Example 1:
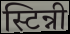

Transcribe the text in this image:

स्टिन्नी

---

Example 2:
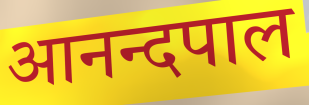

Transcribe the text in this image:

आनन्दपाल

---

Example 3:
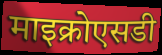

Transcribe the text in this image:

माइक्रोएसडी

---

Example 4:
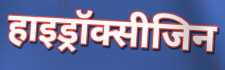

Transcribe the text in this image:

हाइड्रॉक्सीजिन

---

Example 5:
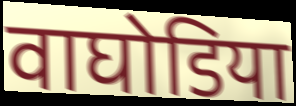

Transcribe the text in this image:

वाघोडिया